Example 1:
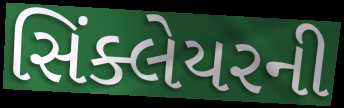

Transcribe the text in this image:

સિંક્લેયરની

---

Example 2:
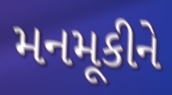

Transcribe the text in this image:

મનમૂકીને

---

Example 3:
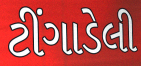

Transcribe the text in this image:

ટીંગાડેલી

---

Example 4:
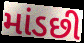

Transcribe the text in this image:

માંડછી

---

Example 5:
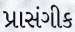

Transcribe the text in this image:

પ્રાસંગીક